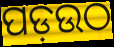
ପଡ଼ଉଠ